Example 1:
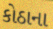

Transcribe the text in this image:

કોઠાના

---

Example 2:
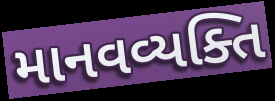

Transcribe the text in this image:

માનવવ્યક્તિ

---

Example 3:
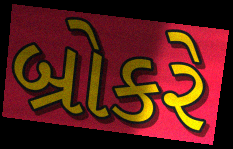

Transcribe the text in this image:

બ્રોકરે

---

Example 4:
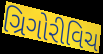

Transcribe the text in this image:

ગ્રિગોરીવિચ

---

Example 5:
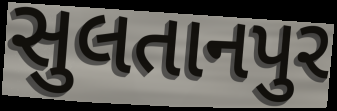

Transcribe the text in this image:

સુલતાનપુર